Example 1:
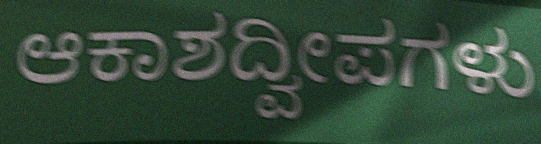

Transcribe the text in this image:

ಆಕಾಶದ್ವೀಪಗಳು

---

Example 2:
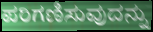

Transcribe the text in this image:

ಪರಿಗಣಿಸುವುದನ್ನು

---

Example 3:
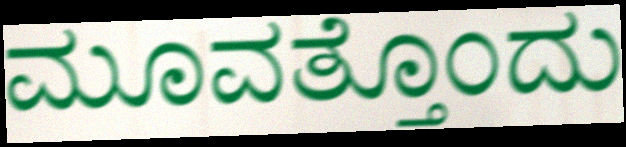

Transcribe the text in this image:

ಮೂವತ್ತೊಂದು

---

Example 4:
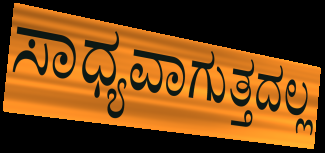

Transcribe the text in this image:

ಸಾಧ್ಯವಾಗುತ್ತದಲ್ಲ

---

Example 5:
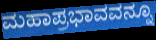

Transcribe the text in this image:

ಮಹಾಪ್ರಭಾವವನ್ನೂ